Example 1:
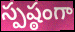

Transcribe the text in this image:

స్పష్ఠంగా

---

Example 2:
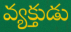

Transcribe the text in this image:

వ్యక్తుడు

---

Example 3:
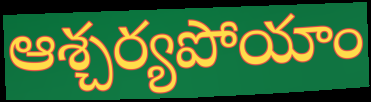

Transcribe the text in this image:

ఆశ్చర్యపోయాం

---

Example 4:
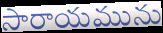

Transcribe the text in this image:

సారాయమును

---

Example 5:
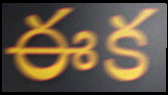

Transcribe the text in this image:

ఈక